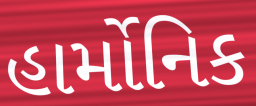
હાર્મોનિક